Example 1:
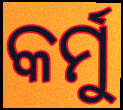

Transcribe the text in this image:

କର୍ମୁ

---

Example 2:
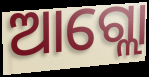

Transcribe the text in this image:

ଆଗ୍ଲୋ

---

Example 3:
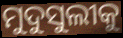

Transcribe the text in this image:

ମୁଦୁସୁଲୀକୁ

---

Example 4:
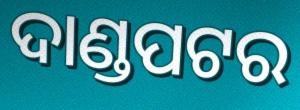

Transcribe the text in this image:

ଦାଣ୍ଡପଟର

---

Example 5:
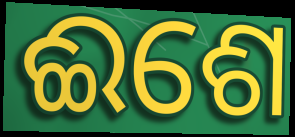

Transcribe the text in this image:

ଈଶେ